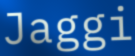
Jaggi